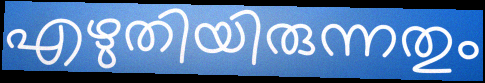
എഴുതിയിരുന്നതും